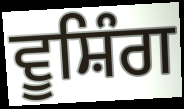
ਵੂਸ਼ਿੰਗ